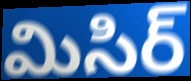
మిసిర్